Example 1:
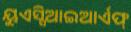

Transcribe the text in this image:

ୟୁଏସ୍ସିଆଇଆର୍ଏଫ୍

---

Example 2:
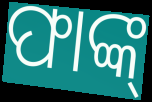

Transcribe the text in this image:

ଫାଙ୍କ୍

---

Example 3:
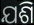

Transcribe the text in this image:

ଯଶି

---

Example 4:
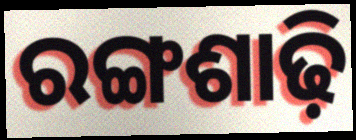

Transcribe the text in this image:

ରଙ୍ଗଶାଢ଼ି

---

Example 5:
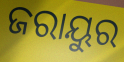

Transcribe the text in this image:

ଜରାୟୁର